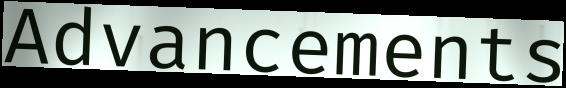
Advancements